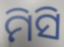
ମିସି